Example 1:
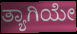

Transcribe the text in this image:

ತ್ಯಾಗಿಯೇ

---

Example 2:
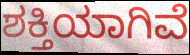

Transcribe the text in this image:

ಶಕ್ತಿಯಾಗಿವೆ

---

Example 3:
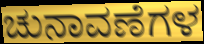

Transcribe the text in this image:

ಚುನಾವಣೆಗಳ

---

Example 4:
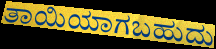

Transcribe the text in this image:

ತಾಯಿಯಾಗಬಹುದು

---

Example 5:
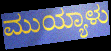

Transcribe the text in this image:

ಮುಯ್ಯಾಳು